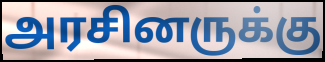
அரசினருக்கு